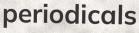
periodicals